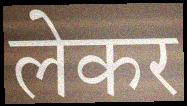
लेकर